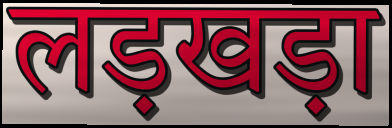
लड़खड़ा